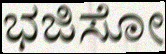
ಭಜಿಸೋ